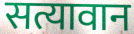
सत्यावान